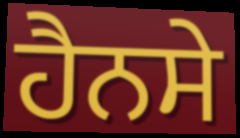
ਹੈਨਸੇ